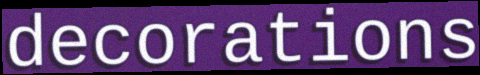
decorations